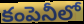
కంపెనీలో